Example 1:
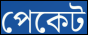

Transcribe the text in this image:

পেকেট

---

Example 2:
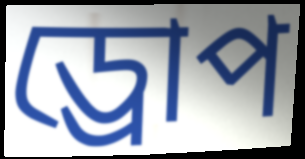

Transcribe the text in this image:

ড্ৰোপ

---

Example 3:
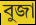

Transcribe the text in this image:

বুজা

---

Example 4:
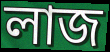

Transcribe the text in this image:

লাজ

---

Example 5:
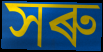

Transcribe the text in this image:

সৰু